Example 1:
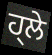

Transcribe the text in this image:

ਹ੍ਲੇ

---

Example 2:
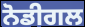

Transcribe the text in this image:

ਨੋਡੀਗਲ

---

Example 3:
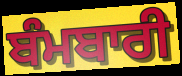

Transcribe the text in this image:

ਬੰਮਬਾਰੀ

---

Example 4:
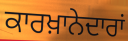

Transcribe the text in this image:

ਕਾਰਖ਼ਾਨੇਦਾਰਾਂ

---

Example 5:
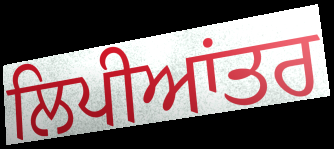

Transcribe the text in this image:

ਲਿਪੀਆਂਤਰ